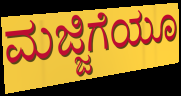
ಮಜ್ಜಿಗೆಯೂ